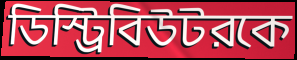
ডিস্ট্রিবিউটরকে